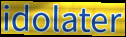
idolater